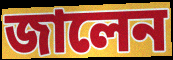
জালেন